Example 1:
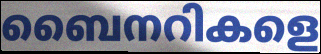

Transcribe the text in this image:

ബൈനറികളെ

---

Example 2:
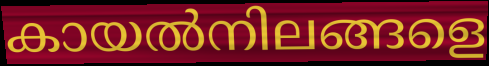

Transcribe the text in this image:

കായൽനിലങ്ങളെ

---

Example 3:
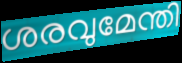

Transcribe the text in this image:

ശരവുമേന്തി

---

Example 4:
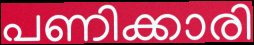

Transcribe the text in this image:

പണിക്കാരി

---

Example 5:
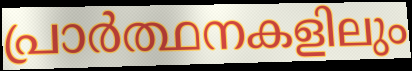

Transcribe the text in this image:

പ്രാർത്ഥനകളിലും